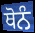
ਥੋਨੰ